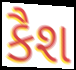
કૈશ